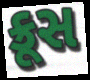
ક્રૂસ